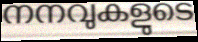
നനവുകളുടെ